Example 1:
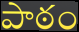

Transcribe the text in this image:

పాఠం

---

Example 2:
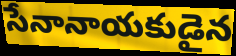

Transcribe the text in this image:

సేనానాయకుడైన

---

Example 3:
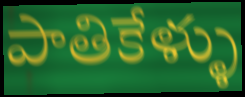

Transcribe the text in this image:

పాతికేళ్ళు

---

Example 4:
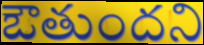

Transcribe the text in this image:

ఔతుందని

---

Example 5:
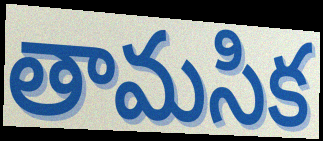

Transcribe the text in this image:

తామసిక